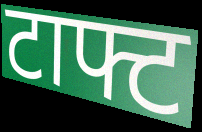
टाफ्ट